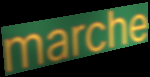
marche